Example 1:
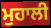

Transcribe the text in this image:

ਮੁਹਾਲੀ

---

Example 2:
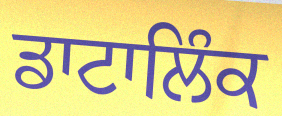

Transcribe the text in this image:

ਡਾਟਾਲਿੰਕ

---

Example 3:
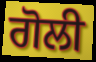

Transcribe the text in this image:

ਗੋਲੀ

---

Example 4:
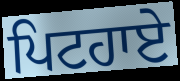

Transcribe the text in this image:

ਪਿਟਹਾਏ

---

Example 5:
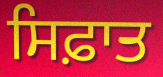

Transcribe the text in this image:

ਸਿਫ਼ਾਤ